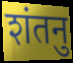
शंतनु